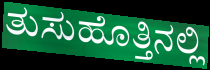
ತುಸುಹೊತ್ತಿನಲ್ಲಿ